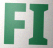
FI